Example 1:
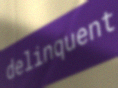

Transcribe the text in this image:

delinquent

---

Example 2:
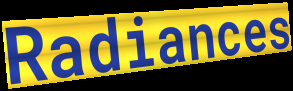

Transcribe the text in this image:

Radiances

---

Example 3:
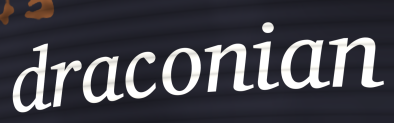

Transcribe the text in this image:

draconian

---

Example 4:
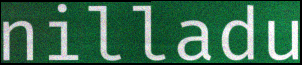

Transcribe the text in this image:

nilladu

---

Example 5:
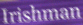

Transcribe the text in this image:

Irishman